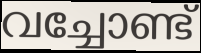
വച്ചോണ്ട്